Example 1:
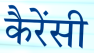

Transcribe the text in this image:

कैरेंसी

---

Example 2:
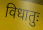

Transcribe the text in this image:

विधातुः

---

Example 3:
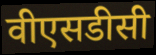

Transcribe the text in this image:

वीएसडीसी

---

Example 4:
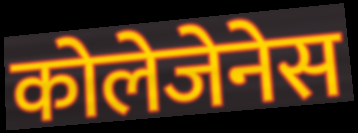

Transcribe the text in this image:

कोलेजेनेस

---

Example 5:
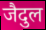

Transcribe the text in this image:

जैदुल